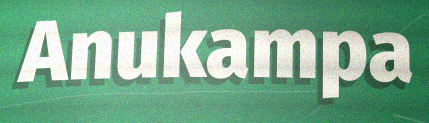
Anukampa